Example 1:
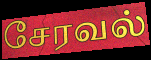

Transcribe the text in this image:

சேரவல்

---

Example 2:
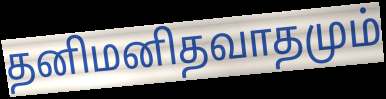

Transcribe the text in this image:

தனிமனிதவாதமும்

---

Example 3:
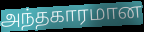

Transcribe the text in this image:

அந்தகாரமான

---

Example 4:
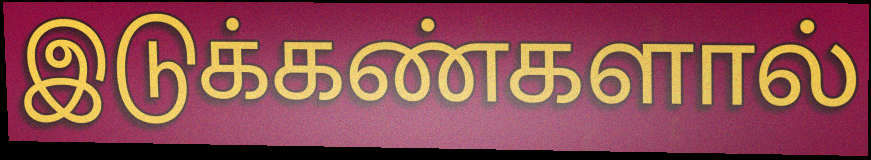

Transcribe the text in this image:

இடுக்கண்களால்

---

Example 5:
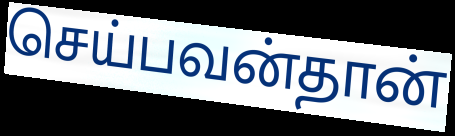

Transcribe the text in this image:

செய்பவன்தான்